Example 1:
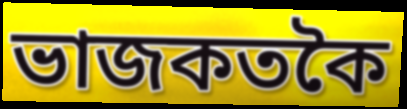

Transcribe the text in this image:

ভাজকতকৈ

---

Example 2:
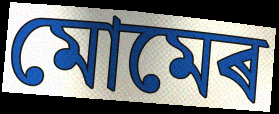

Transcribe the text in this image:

মোমেৰ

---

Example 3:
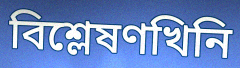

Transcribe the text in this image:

বিশ্লেষণখিনি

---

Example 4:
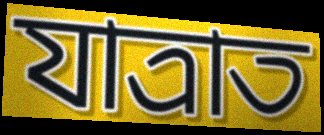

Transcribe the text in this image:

যাত্ৰাত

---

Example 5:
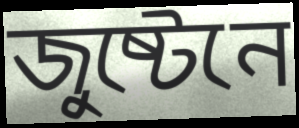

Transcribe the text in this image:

জুষ্টেনে